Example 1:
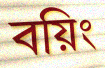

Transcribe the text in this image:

বয়িং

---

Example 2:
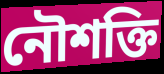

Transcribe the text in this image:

নৌশক্তি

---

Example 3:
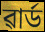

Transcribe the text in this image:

ৱাৰ্ড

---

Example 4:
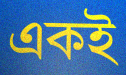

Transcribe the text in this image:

একই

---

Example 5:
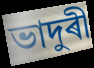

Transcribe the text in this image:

ভাদুৰী